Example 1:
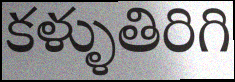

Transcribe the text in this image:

కళ్ళుతిరిగి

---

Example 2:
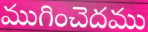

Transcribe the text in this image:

ముగించెదము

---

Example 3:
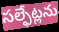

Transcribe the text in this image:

సల్ఫేట్లను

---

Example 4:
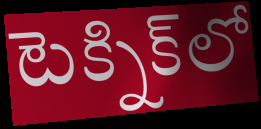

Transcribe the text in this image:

టెక్నిక్‌లో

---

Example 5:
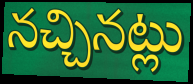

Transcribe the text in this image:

నచ్చినట్లు